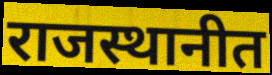
राजस्थानीत